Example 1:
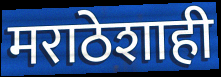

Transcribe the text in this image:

मराठेशाही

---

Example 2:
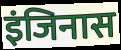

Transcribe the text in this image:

इंजिनास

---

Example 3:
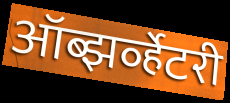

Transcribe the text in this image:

ऑब्झर्व्हेटरी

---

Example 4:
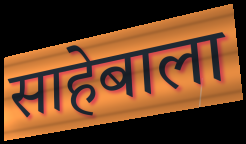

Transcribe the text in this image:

साहेबाला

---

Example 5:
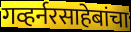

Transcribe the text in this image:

गव्हर्नरसाहेबांचा